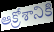
ఆక్రోశానికి